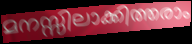
മനസ്സിലാക്കിത്തരാം